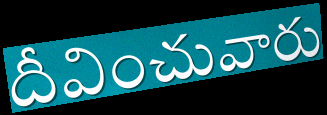
దీవించువారు